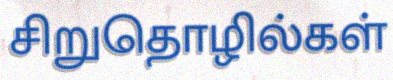
சிறுதொழில்கள்